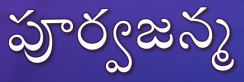
పూర్వజన్మ